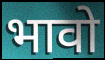
भावो